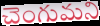
చెంగుమని